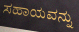
ಸಹಾಯವನ್ನು